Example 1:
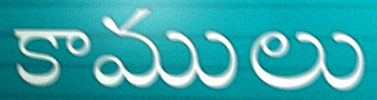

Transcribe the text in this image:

కాములు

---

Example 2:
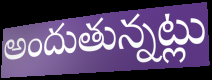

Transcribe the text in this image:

అందుతున్నట్లు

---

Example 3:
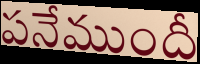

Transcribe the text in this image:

పనేముందీ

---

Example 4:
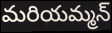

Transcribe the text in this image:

మరియమ్మన్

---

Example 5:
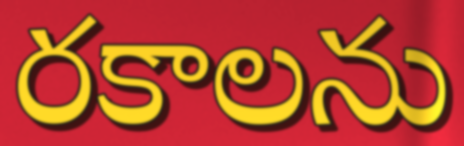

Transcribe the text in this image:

రకాలను